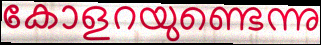
കോളറയുണ്ടെന്നു